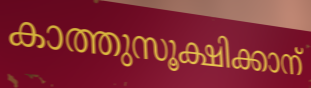
കാത്തുസൂക്ഷിക്കാന്